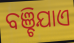
ବଞ୍ଚିଯାଏ